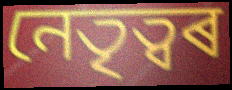
নেতৃত্বৰ